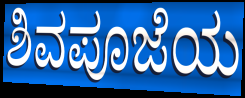
ಶಿವಪೂಜೆಯ